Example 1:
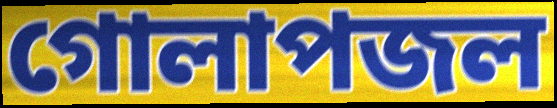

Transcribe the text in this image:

গোলাপজল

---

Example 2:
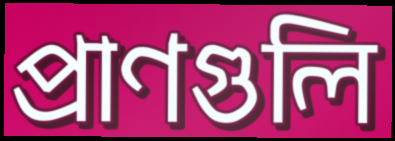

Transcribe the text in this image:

প্রাণগুলি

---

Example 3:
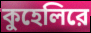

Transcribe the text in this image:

কুহেলিরে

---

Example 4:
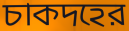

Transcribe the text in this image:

চাকদহের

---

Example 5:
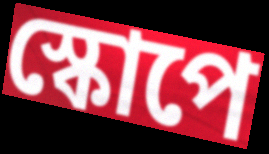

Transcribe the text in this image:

স্কোপে